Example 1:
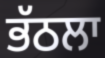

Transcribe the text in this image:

ਭੱਠਲਾ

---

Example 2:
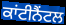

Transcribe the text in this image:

ਕਾਂਟੀਨੈਂਟਲ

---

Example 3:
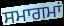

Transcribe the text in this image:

ਸਮਾਗਮਾਂ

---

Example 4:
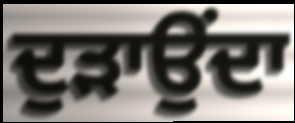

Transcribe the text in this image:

ਦੁੜਾਉਂਦਾ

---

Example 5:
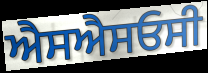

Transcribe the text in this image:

ਐਸਐਸਓਸੀ